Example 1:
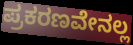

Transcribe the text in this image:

ಪ್ರಕರಣವೇನಲ್ಲ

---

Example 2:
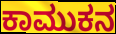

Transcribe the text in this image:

ಕಾಮುಕನ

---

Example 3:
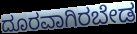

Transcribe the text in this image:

ದೂರವಾಗಿರಬೇಡ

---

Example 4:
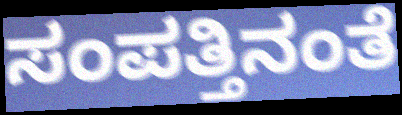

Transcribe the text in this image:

ಸಂಪತ್ತಿನಂತೆ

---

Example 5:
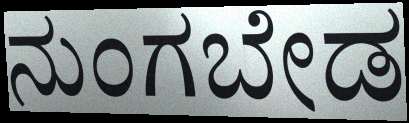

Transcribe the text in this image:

ನುಂಗಬೇಡ